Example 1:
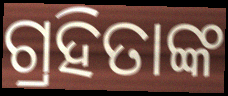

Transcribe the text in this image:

ଗ୍ରହିତାଙ୍କ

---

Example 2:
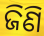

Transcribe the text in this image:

ଜିଣି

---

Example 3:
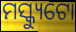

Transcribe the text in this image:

ମସ୍କ୍ୟୁଟୋ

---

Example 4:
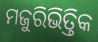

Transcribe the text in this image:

ମଜୁରିଭିତ୍ତିକ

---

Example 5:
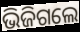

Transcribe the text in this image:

ଭିଜିଗଲେ